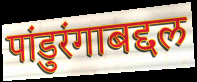
पांडुरंगाबद्दल